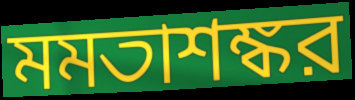
মমতাশঙ্কর